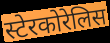
स्टेरकोरेलिस